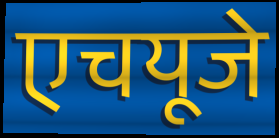
एचयूजे